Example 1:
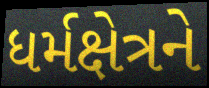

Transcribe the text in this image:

ધર્મક્ષેત્રને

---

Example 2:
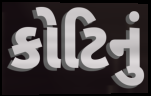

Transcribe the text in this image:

કોટિનું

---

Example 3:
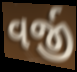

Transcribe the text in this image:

વર્જી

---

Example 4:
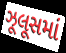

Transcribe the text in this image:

ઝૂલૂસમાં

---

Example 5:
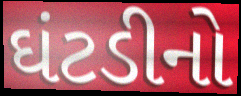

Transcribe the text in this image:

ઘંટડીનો